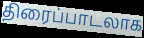
திரைப்பாடலாக